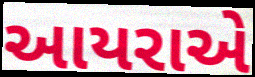
આયરાએ